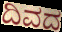
ದಿವದ